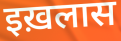
इख़लास